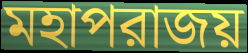
মহাপরাজয়